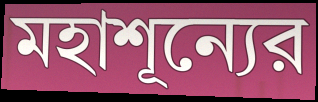
মহাশূন্যের